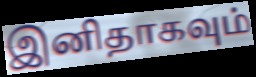
இனிதாகவும்